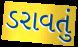
ડરાવતું